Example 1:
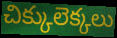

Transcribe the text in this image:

చిక్కులెక్కలు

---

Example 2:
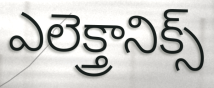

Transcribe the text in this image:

ఎలెక్త్రానిక్స్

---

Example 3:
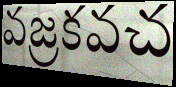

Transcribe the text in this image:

వజ్రకవచ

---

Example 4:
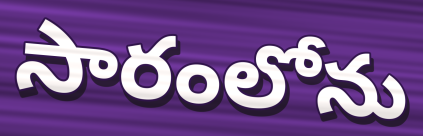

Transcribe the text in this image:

సారంలోను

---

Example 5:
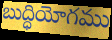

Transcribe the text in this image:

బుద్ధియోగము